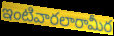
ఇంటివారలారామీర